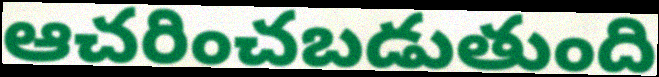
ఆచరించబడుతుంది